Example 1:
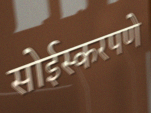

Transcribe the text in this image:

सोईस्करपणे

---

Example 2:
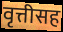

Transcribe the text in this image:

वृत्तीसह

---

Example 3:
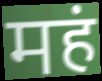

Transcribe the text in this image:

महं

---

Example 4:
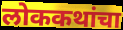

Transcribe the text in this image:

लोककथांचा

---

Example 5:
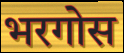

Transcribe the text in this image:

भरगोस